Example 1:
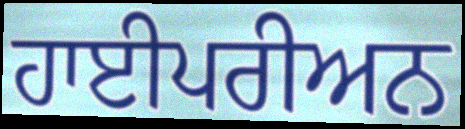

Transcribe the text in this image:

ਹਾਈਪਰੀਅਨ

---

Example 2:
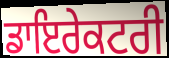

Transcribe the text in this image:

ਡਾਇਰੇਕਟਰੀ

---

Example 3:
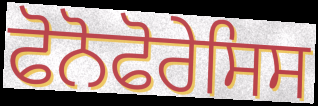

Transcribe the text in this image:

ਫੋਨੋਫੋਰੇਸਿਸ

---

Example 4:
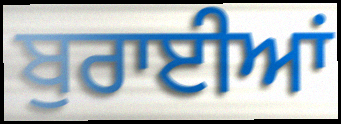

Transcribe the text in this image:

ਬੁਰਾਈਆਂ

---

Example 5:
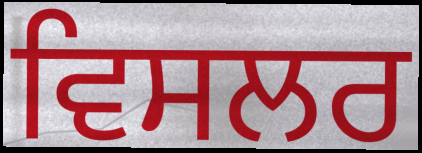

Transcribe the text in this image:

ਵਿਸਲਰ